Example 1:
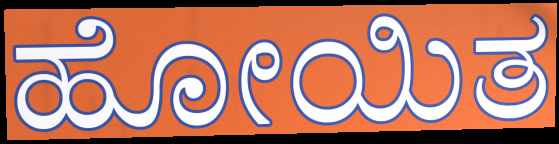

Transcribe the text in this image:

ಹೋಯಿತ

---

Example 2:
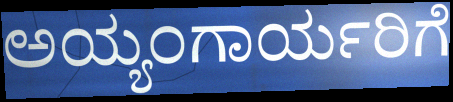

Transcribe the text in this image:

ಅಯ್ಯಂಗಾರ್ಯರಿಗೆ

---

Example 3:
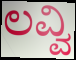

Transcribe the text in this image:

ಲವ್ವಿ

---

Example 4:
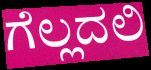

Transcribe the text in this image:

ಗೆಲ್ಲದಲಿ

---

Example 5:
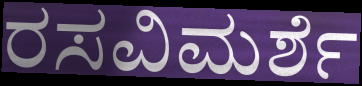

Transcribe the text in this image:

ರಸವಿಮರ್ಶೆ